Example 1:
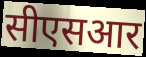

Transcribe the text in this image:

सीएसआर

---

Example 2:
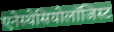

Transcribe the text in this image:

एनेस्थेसियोलॉजिस्ट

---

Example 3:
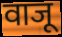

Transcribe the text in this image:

वाजू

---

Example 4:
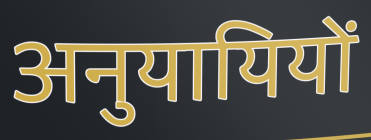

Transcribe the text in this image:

अनुयायियों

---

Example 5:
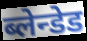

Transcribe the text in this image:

ब्लेन्डेड